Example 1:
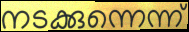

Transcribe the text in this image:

നടക്കുന്നെന്ന്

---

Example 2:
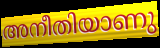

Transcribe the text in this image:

അനീതിയാണു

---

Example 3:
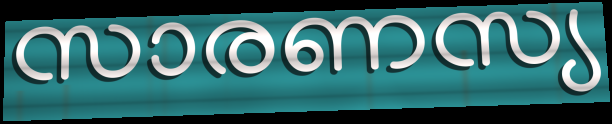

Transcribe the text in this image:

സാരണസ്യ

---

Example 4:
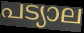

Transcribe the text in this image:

പട്യാല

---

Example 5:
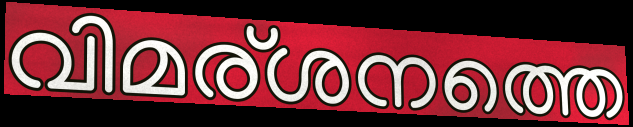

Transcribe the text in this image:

വിമര്ശനത്തെ